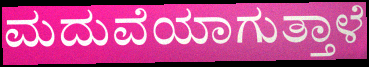
ಮದುವೆಯಾಗುತ್ತಾಳೆ